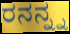
ರನನ್ನ್ನ